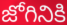
జోగినికి